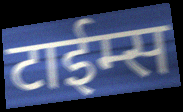
टाईम्स